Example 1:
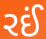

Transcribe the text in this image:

રઈં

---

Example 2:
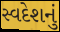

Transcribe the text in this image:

સ્વદેશનું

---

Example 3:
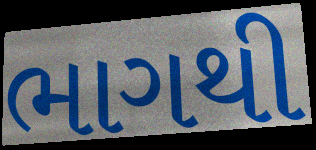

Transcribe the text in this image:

ભાગથી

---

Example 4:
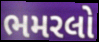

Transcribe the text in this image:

ભમરલો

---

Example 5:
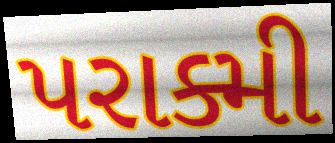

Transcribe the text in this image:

પરાક્મી